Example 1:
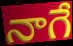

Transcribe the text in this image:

నాగే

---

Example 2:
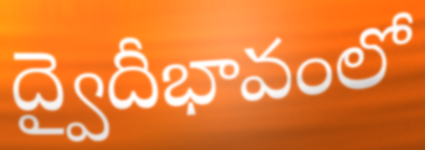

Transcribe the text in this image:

ద్వైదీభావంలో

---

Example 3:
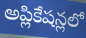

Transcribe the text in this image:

అప్లికేషన్లలో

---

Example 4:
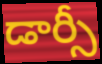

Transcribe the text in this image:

డార్సీ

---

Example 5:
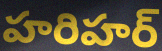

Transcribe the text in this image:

హరిహర్